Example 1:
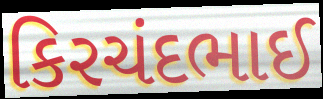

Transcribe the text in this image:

કિરચંદભાઈ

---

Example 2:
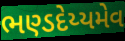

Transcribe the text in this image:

ભણ્ડદેય્યમેવ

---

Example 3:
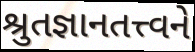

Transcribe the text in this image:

શ્રુતજ્ઞાનતત્ત્વને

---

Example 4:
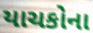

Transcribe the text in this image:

યાચકોના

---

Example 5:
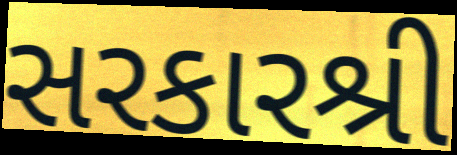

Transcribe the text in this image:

સરકારશ્રી